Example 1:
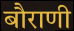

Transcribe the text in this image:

बौराणी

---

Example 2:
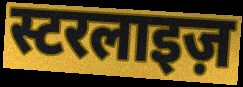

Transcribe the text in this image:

स्टरलाइज़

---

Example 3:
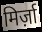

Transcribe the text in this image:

मिर्ज़ा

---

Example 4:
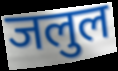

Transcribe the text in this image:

जलुल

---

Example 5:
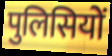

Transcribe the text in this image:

पुलिसियों